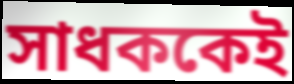
সাধককেই